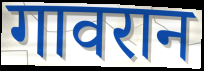
गावरान